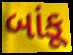
બાંકૂ